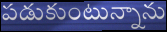
పడుకుంటున్నాను